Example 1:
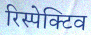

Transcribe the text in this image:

रिस्पेक्टिव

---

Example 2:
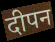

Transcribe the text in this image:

दीपन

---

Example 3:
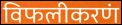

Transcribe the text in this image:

विफलीकरणं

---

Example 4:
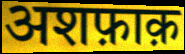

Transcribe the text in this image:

अशफ़ाक़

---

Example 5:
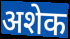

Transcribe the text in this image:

अशेक